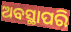
ଅବସ୍ଥାପରି